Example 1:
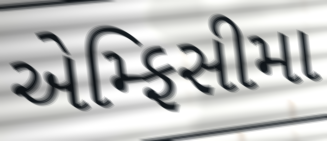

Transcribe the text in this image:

એમ્ફિસીમા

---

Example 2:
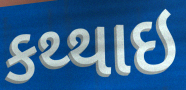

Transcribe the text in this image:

કથ્થાઇ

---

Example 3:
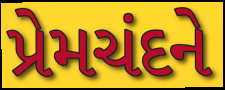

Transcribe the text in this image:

પ્રેમચંદને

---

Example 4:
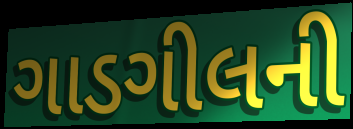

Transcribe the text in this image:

ગાડગીલની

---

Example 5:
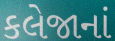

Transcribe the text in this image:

કલેજાનાં